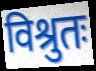
विश्रुतः